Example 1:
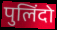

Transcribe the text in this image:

पुलिंदो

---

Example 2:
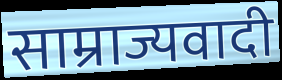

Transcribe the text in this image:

साम्राज्‍यवादी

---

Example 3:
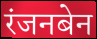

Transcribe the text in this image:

रंजनबेन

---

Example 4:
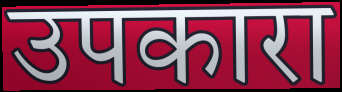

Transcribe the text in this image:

उपकारा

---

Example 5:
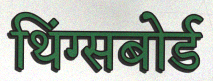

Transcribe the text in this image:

थिंग्सबोर्ड